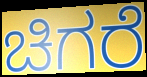
ಚಿಗರೆ